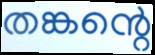
തങ്കന്റെ